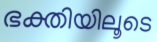
ഭക്തിയിലൂടെ